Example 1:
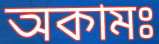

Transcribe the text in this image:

অকামঃ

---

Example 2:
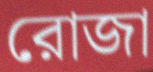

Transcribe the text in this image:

রোজা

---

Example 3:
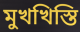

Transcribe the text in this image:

মুখখিস্তি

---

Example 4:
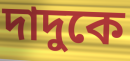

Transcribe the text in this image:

দাদুকে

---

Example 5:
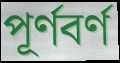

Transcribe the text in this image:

পূর্ণবর্ণ